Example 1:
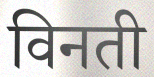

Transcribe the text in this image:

विनती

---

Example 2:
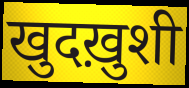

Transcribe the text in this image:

खुदख़ुशी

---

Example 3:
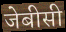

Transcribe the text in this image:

जेबीसी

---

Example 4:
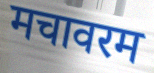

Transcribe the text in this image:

मचावरम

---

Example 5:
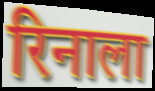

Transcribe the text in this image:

रिनाला